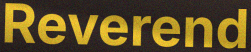
Reverend